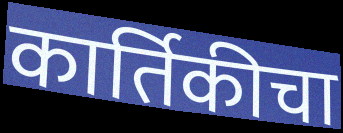
कार्तिकीचा